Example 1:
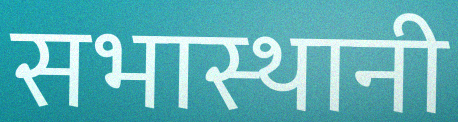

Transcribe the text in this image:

सभास्थानी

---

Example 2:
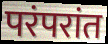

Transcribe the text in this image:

परंपरांत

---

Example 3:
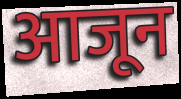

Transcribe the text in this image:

आजून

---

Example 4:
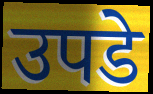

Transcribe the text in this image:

उपडे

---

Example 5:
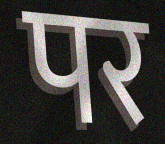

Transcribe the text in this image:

पर